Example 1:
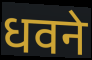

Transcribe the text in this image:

धवने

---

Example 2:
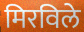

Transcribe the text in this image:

मिरविले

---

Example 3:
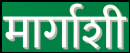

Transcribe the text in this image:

मार्गाशी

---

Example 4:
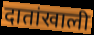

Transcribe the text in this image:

दातांखाली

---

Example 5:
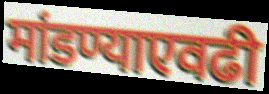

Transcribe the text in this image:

मांडण्याएवढी